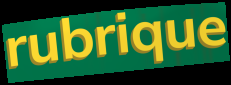
rubrique